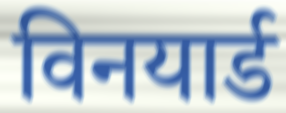
विनयार्ड